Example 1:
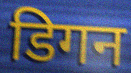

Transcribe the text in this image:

डिगन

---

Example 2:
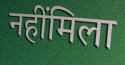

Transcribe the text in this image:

नहींमिला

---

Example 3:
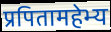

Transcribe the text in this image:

प्रपितामहेभ्य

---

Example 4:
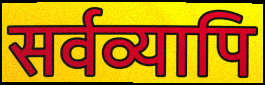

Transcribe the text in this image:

सर्वव्यापि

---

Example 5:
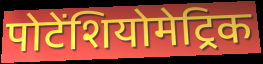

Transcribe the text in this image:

पोटेंशियोमेट्रिक